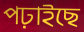
পঢ়াইছে